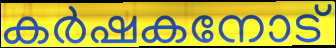
കർഷകനോട്